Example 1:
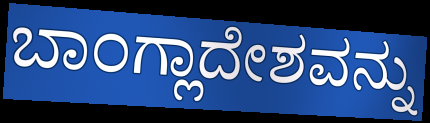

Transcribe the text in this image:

ಬಾಂಗ್ಲಾದೇಶವನ್ನು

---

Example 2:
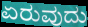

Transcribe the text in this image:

ಏರುವುದು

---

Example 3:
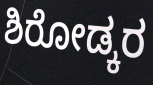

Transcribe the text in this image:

ಶಿರೋಡ್ಕರ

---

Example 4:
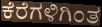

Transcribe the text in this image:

ಕೆರೆಗಳಿಗಿಂತ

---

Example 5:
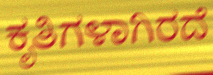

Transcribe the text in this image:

ಕೃತಿಗಳಾಗಿರದೆ